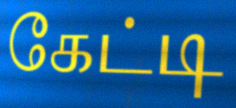
கேட்டி